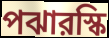
পঝারস্কি